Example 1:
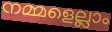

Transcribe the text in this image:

നമ്മളെല്ലാം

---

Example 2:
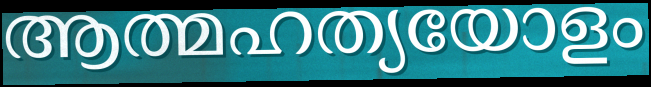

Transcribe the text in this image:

ആത്മഹത്യയോളം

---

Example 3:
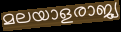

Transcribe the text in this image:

മലയാളരാജ്യ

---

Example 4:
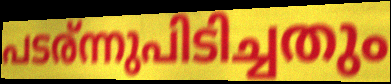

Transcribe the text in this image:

പടര്ന്നുപിടിച്ചതും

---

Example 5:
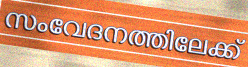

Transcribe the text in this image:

സംവേദനത്തിലേക്ക്